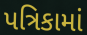
પત્રિકામાં